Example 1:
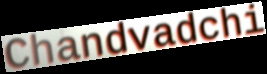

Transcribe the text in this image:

Chandvadchi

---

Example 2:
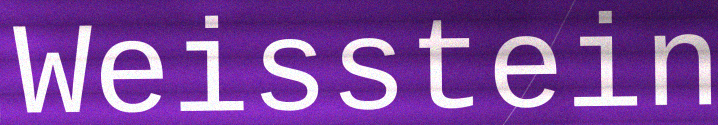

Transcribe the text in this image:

Weisstein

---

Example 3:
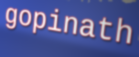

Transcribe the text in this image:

gopinath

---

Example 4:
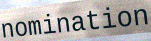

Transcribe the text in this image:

nomination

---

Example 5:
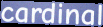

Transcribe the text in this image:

cardinal